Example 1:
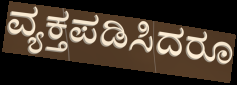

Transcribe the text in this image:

ವ್ಯಕ್ತಪಡಿಸಿದರೂ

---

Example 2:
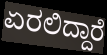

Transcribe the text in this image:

ಏರಲಿದ್ದಾರೆ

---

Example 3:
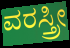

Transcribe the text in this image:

ವರಸ್ತ್ರೀ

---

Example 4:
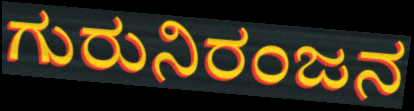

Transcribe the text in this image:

ಗುರುನಿರಂಜನ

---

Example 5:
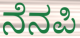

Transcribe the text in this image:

ನೆನಪಿ